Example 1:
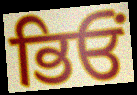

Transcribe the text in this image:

ਭਿਓਂ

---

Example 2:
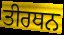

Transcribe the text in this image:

ਤੀਰਥਨ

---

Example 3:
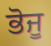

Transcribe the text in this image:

ਭੋਜੂ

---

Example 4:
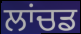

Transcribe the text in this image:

ਲਾਂਚਡ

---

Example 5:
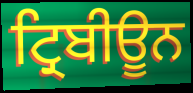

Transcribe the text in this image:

ਟ੍ਰਿਬੀਊਨ